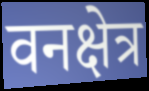
वनक्षेत्र